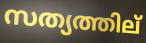
സത്യത്തില്